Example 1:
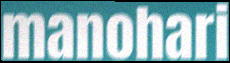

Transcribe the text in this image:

manohari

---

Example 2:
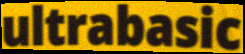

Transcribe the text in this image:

ultrabasic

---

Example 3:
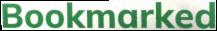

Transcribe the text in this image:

Bookmarked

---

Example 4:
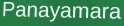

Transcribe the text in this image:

Panayamara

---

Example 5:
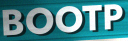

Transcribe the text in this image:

BOOTP